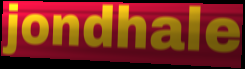
jondhale